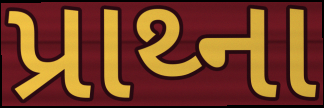
પ્રાથ્ના